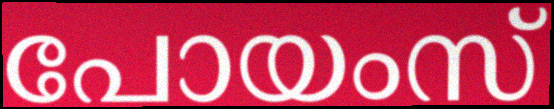
പോയംസ്